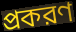
প্রকরণ